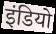
इंडियो